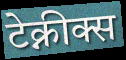
टेक्नीक्स